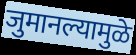
जुमानल्यामुळे